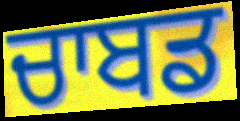
ਚਾਬਡ